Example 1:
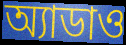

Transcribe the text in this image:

অ্যাডাও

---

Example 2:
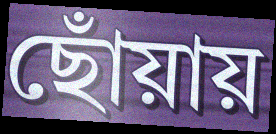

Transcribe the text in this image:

ছোঁয়ায়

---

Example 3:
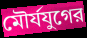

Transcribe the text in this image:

মৌর্যযুগের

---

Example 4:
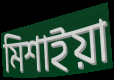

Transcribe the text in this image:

মিশাইয়া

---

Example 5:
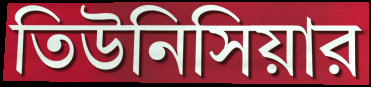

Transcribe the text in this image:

তিউনিসিয়ার